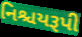
નિશ્ચયરૂપી